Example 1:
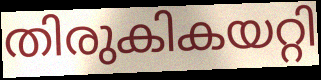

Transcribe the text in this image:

തിരുകികയറ്റി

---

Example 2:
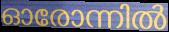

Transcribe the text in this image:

ഓരോന്നിൽ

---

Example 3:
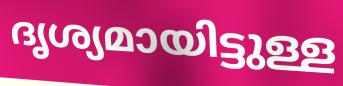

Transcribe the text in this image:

ദൃശ്യമായിട്ടുള്ള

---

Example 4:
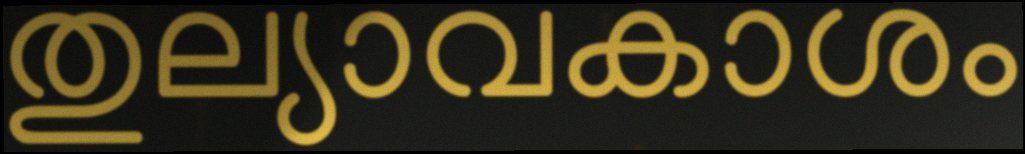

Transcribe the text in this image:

തുല്യാവകാശം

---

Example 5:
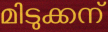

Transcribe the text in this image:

മിടുക്കന്